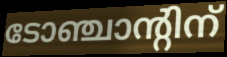
ടോഞ്ചാന്റിന്